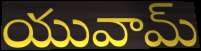
యువామ్